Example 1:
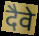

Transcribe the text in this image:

दैवे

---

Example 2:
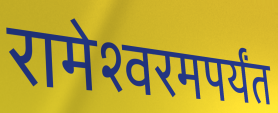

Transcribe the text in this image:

रामेश्वरमपर्यंत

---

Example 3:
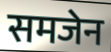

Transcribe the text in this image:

समजेन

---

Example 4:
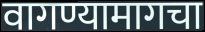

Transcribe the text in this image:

वागण्यामागचा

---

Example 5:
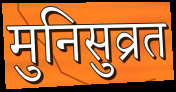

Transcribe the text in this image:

मुनिसुव्रत